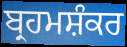
ਬ੍ਰਹਮਸ਼ੰਕਰ